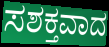
ಸಶಕ್ತವಾದ